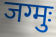
जग्मुः